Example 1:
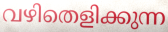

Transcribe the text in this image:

വഴിതെളിക്കുന്ന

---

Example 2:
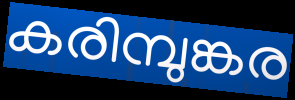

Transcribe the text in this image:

കരിമ്പുങ്കര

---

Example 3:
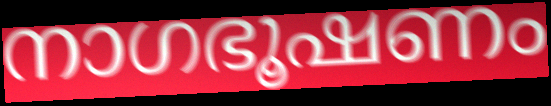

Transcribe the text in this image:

നാഗഭൂഷണം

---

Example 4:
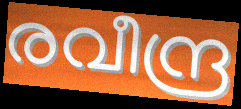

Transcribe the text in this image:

രവീന്ദ്ര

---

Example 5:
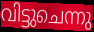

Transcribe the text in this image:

വിട്ടുചെന്നു